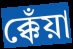
ক্কেঁয়া